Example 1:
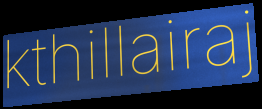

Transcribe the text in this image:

kthillairaj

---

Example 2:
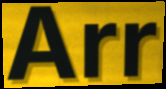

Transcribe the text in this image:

Arr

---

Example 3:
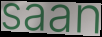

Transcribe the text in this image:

saan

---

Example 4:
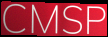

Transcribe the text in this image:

CMSP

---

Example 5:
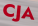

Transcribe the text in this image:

CJA